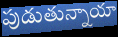
పుడుతున్నాయా